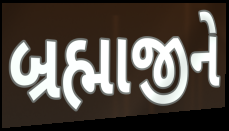
બ્રહ્માજીને